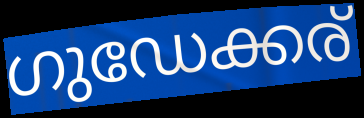
ഗുഡേക്കര്